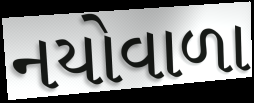
નયોવાળા